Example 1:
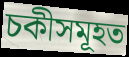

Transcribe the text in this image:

চকীসমূহত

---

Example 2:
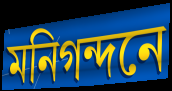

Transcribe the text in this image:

মনিগন্দনে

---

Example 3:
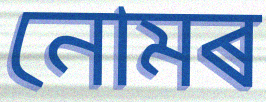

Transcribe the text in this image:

নোমৰ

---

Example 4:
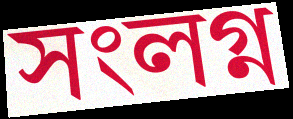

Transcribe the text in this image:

সংলগ্ন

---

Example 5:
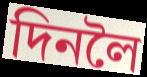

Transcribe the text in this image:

দিনলৈ